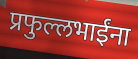
प्रफुल्लभाईंना